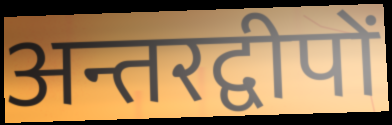
अन्तरद्वीपों